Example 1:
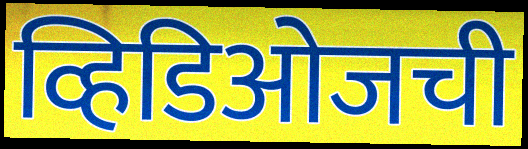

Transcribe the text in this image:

व्हिडिओजची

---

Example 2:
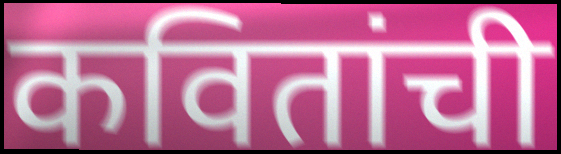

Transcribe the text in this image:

कवितांची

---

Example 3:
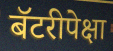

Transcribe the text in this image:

बॅटरीपेक्षा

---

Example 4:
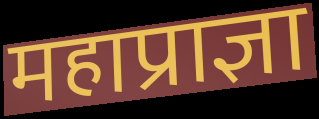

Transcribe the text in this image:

महाप्राज्ञा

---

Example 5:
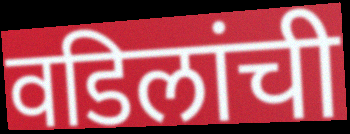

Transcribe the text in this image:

वडिलांची